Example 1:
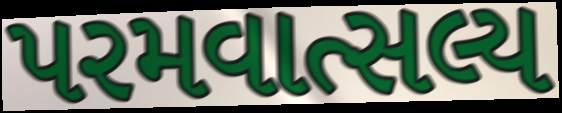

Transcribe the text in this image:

પરમવાત્સલ્ય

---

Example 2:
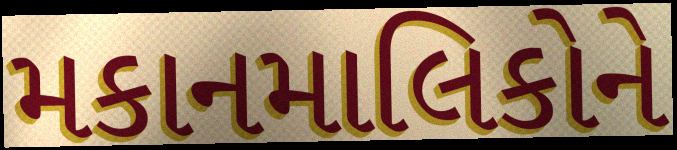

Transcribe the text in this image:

મકાનમાલિકોને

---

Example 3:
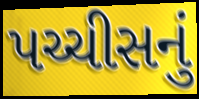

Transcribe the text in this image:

પચ્ચીસનું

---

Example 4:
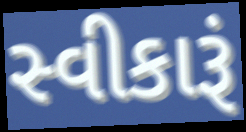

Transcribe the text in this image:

સ્વીકારૂં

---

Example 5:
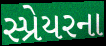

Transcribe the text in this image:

સ્પ્રેયરના